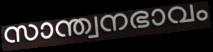
സാന്ത്വനഭാവം